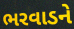
ભરવાડને